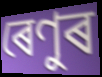
ৰেণুৰ